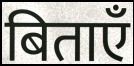
बिताएँ